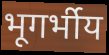
भूगर्भीय